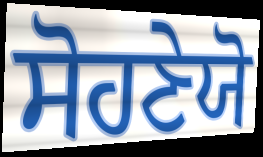
ਸੋਹਣੇਯੋ